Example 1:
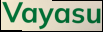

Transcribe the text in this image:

Vayasu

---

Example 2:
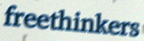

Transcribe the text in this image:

freethinkers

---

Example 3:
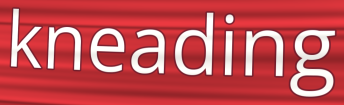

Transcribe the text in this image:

kneading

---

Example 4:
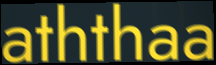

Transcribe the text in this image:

aththaa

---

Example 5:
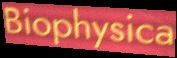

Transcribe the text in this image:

Biophysica